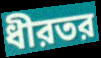
ধীরতর